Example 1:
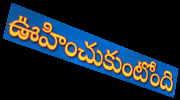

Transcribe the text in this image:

ఊహించుకుంటోంది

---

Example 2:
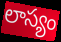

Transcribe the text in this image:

లాస్యం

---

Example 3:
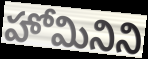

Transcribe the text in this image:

హోమినిని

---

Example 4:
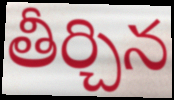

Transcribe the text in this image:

తీర్చిన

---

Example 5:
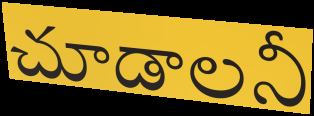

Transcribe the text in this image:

చూడాలనీ